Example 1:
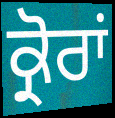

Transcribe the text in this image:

ਕ੍ਰੋਰਾਂ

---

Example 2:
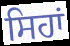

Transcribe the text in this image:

ਸਿਹਾਂ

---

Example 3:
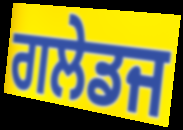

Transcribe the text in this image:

ਗਲੇਡਜ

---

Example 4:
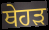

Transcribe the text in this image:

ਥੇਹੜ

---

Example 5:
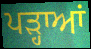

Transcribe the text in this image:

ਪੜ੍ਹਾਆਂ